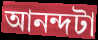
আনন্দটা